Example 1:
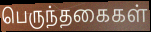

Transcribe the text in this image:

பெருந்தகைகள்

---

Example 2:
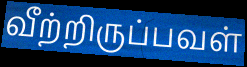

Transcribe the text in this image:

வீற்றிருப்பவள்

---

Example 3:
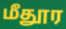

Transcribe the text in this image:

மீதூர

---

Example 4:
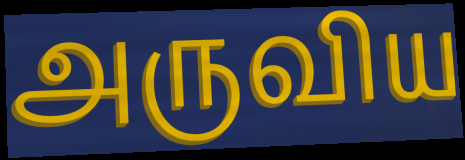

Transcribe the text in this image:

அருவிய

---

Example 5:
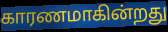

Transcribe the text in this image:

காரணமாகின்றது